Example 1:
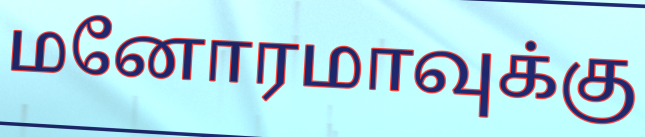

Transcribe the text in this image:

மனோரமாவுக்கு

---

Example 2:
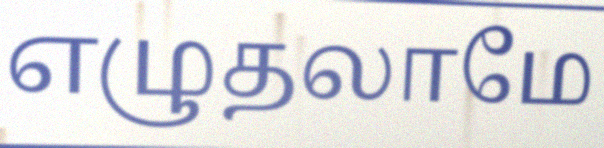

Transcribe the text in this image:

எழுதலாமே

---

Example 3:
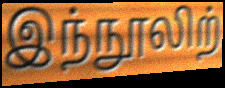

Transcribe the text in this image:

இந்நூலிற்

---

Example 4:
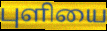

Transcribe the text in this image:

புளியை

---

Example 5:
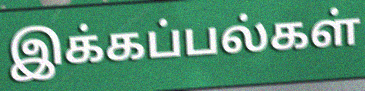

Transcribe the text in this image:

இக்கப்பல்கள்